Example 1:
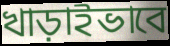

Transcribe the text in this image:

খাড়াইভাবে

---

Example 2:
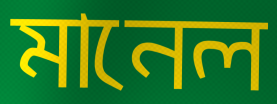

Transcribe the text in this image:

মানেল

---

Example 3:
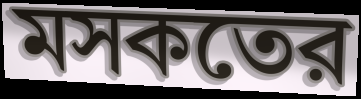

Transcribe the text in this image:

মসকতের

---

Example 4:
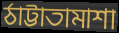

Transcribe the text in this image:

ঠাট্টাতামাশা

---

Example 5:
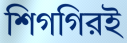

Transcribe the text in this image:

শিগগিরই